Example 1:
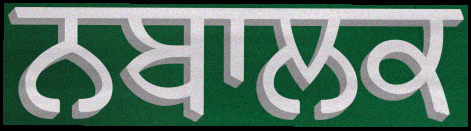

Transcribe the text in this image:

ਨਬਾਲਕ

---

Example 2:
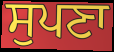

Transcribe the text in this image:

ਸੁਪਣਾ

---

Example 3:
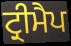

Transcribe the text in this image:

ਟ੍ਰੀਮੈਪ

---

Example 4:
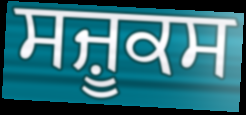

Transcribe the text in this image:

ਸਜ਼ੂਕਸ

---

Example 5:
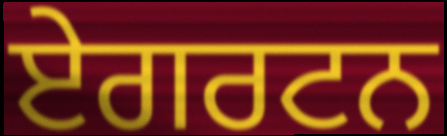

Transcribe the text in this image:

ਏਗਰਟਨ